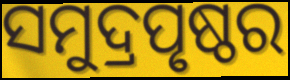
ସମୁଦ୍ରପୃଷ୍ଠର